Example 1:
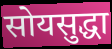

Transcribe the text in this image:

सोयसुद्धा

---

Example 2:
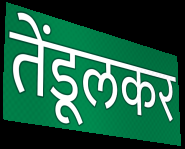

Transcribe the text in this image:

तेंडूलकर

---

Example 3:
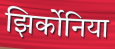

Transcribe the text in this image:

झिर्कोनिया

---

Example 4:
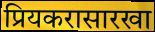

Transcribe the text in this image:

प्रियकरासारखा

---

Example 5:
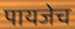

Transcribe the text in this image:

पायजेच